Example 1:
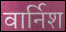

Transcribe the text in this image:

वार्निश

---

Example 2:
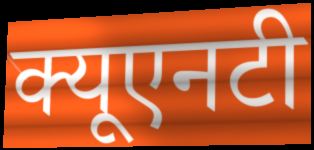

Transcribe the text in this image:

क्यूएनटी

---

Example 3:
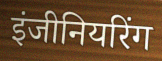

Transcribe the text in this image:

इंजीनियरिंग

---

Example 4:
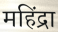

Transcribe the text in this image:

महिंद्रा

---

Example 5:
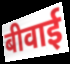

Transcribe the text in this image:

बीवाई